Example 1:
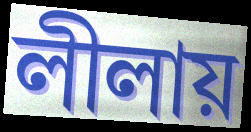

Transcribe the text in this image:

লীলায়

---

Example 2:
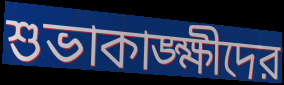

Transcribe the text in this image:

শুভাকাঙ্ক্ষীদের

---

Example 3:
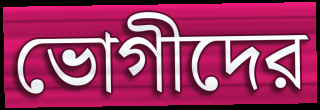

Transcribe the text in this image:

ভোগীদের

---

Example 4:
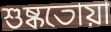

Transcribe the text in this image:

শুষ্কতোয়া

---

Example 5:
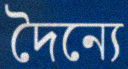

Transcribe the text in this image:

দৈন্যে